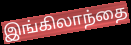
இங்கிலாந்தை